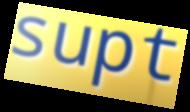
supt